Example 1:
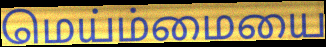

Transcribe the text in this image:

மெய்ம்மையை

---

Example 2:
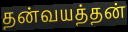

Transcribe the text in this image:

தன்வயத்தன்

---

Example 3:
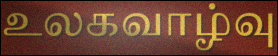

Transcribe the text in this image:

உலகவாழ்வு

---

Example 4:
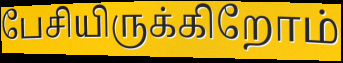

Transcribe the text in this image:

பேசியிருக்கிறோம்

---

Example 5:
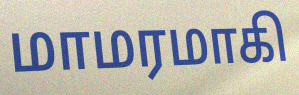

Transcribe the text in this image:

மாமரமாகி